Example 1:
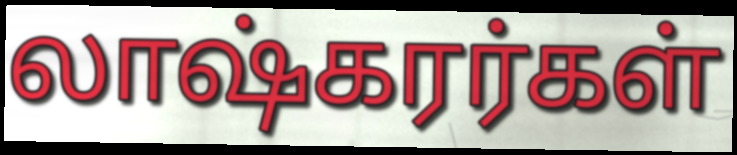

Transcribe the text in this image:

லாஷ்கரர்கள்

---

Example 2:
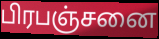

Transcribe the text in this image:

பிரபஞ்சனை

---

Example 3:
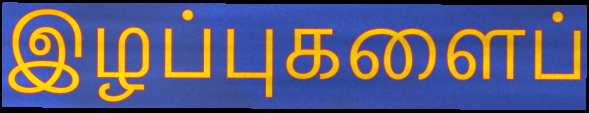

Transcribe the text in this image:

இழப்புகளைப்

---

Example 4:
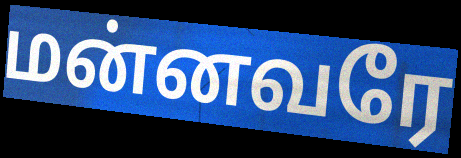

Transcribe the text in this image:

மன்னவரே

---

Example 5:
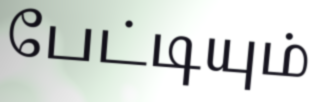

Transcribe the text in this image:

பேட்டியும்